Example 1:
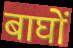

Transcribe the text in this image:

बाघों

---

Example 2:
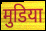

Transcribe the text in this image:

मुडिया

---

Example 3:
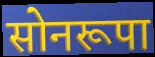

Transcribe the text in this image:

सोनरूपा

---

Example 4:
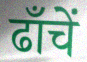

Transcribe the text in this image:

ढाँचें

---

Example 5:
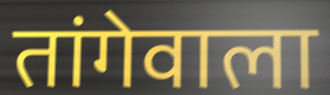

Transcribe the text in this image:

तांगेवाला